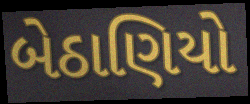
બેઠાણિયો